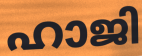
ഹാജി